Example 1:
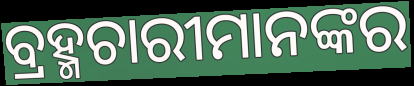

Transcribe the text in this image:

ବ୍ରହ୍ମଚାରୀମାନଙ୍କର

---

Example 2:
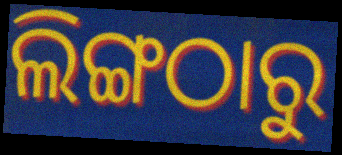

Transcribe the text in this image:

ଲିଙ୍ଗଠାରୁ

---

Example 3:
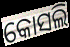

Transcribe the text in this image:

କୋସଲି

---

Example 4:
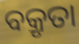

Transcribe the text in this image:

ବକ୍ରୃତା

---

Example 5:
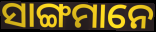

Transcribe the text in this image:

ସାଙ୍ଗମାନେ